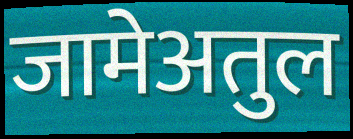
जामेअतुल